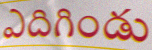
ఎదిగిండు